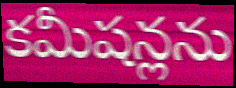
కమీషన్లను